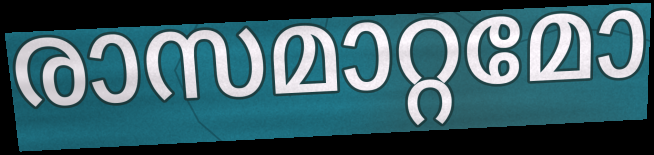
രാസമാറ്റമോ